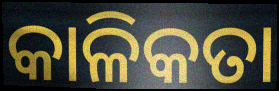
କାଳିକତା